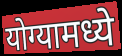
योग्यामध्ये